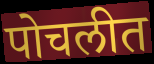
पोचलीत